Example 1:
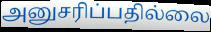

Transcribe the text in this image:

அனுசரிப்பதில்லை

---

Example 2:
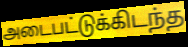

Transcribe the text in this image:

அடைபட்டுக்கிடந்த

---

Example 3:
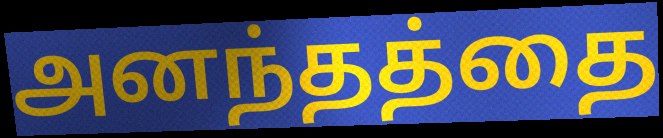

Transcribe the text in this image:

அனந்தத்தை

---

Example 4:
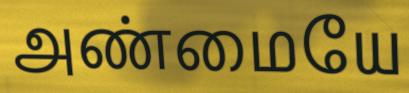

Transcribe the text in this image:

அண்மையே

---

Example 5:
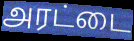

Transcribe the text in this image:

அரட்டை